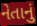
નેતાનું